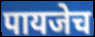
पायजेच